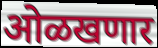
ओळखणार